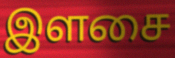
இளசை